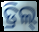
ଡ୍ରିଲ୍